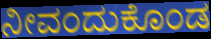
ನೀವಂದುಕೊಂಡ